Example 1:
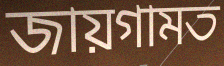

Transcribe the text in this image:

জায়গামত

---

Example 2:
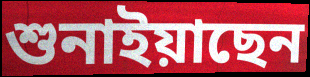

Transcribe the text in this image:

শুনাইয়াছেন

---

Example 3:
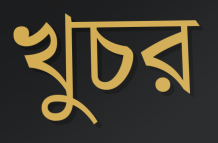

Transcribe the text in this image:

খুচর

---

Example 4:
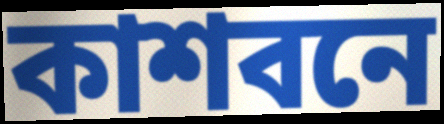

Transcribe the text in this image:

কাশবনে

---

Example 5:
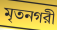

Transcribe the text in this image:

মৃতনগরী